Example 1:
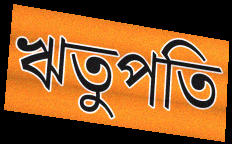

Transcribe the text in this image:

ঋতুপতি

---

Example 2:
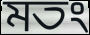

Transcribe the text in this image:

মতং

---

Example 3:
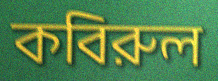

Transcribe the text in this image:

কবিরুল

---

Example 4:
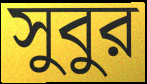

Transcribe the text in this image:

সুবুর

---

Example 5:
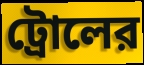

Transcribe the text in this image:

ট্রোলের